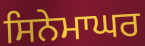
ਸਿਨੇਮਾਘਰ